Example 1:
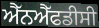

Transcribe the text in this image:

ਐੱਨਐੱਫਡੀਸੀ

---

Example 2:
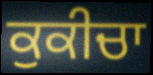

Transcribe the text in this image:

ਕੁਕੀਚਾ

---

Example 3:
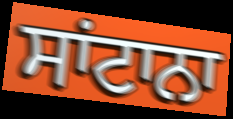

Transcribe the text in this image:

ਸਾਂਟਾਨਾ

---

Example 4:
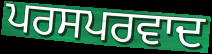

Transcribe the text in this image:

ਪਰਸਪਰਵਾਦ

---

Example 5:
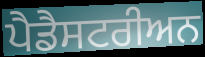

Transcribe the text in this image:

ਪੈਡੈਸਟਰੀਅਨ